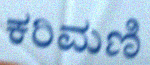
ಕರಿಮಣಿ